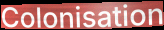
Colonisation